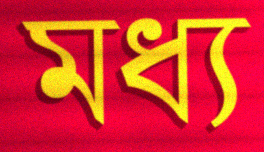
মধ্য